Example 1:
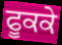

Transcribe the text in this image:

ਫੂਕਕੇ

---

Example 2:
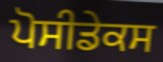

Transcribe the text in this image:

ਪੋਸੀਡੇਕਸ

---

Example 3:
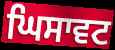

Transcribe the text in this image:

ਘਿਸਾਵਟ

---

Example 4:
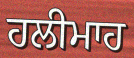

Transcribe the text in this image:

ਹਲੀਮਾਹ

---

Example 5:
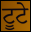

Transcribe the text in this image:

ਟੂਟੇ